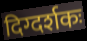
दिग्दर्शकः